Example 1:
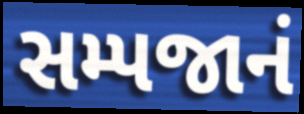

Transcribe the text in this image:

સમ્પજાનં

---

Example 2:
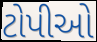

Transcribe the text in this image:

ટોપીઓ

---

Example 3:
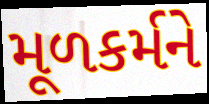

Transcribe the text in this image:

મૂળકર્મને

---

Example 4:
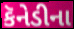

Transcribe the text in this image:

કૅનેડીના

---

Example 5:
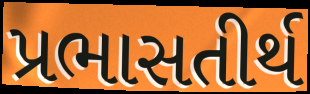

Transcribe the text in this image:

પ્રભાસતીર્થ